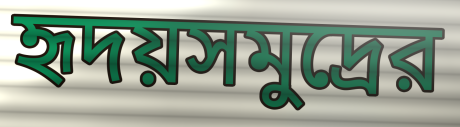
হৃদয়সমুদ্রের